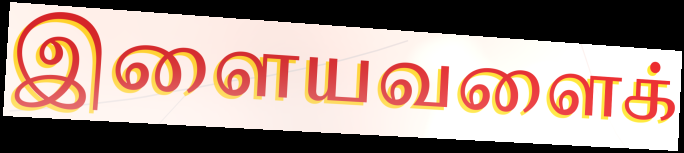
இளையவளைக்